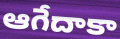
ఆగేదాకా